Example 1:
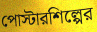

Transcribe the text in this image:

পোস্টারশিল্পের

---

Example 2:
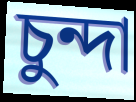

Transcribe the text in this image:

চুন্দা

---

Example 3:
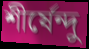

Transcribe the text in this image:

শীর্ষেন্দু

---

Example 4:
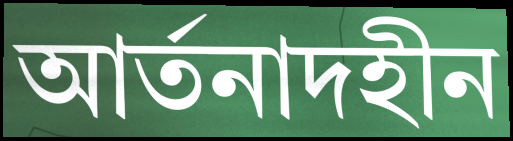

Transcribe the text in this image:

আর্তনাদহীন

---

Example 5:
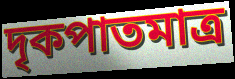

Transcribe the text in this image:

দৃকপাতমাত্র